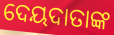
ଦେୟଦାତାଙ୍କ